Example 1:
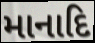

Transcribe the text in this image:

માનાદિ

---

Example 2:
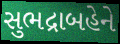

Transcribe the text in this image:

સુભદ્રાબહેને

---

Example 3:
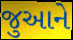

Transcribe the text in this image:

જુઆને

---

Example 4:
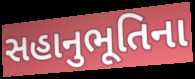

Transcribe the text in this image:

સહાનુભૂતિના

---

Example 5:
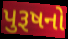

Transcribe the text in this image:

પુરૂષનો